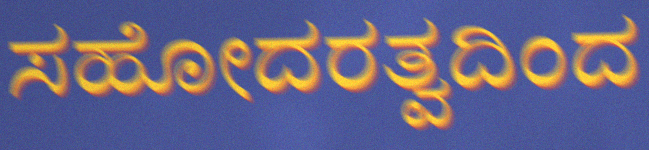
ಸಹೋದರತ್ವದಿಂದ